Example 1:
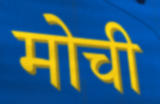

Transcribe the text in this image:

मोची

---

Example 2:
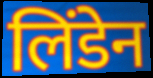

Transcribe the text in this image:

लिंडेन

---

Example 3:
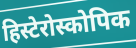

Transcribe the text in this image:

हिस्टेरोस्कोपिक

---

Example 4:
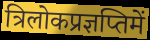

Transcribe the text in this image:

त्रिलोकप्रज्ञप्तिमें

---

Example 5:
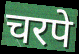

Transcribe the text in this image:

चरपे